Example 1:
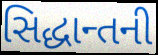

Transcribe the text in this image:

સિદ્ધાન્તની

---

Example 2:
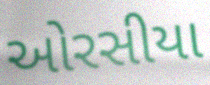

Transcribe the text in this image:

ઓરસીયા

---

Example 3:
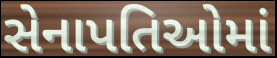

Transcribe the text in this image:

સેનાપતિઓમાં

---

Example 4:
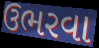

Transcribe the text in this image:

ઉભરવા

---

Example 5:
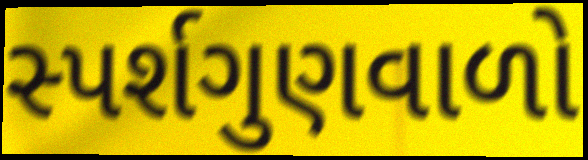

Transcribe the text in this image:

સ્પર્શગુણવાળો